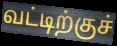
வட்டிற்குச்